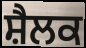
ਸ਼ੈਲਕ